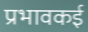
प्रभावकई